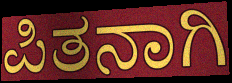
ಪಿತನಾಗಿ